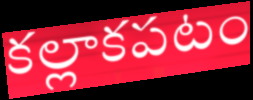
కల్లాకపటం